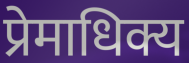
प्रेमाधिक्य